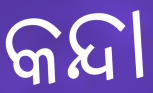
କନ୍ଦା